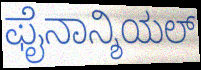
ಫೈನಾನ್ಶಿಯಲ್